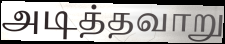
அடித்தவாறு